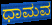
ಧಾಮವ